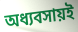
অধ্যবসায়ই